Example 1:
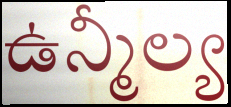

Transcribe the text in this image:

ఉన్మీల్య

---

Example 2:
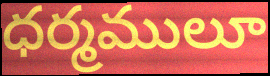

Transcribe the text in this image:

ధర్మములూ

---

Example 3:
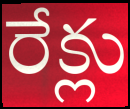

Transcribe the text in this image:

రేక్లు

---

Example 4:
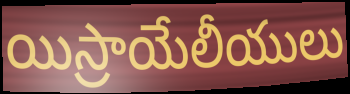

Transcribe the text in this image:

యిస్రాయేలీయులు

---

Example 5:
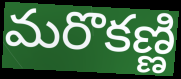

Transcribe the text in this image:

మరొకణ్ణి